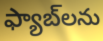
ఫ్యాబ్‌లను